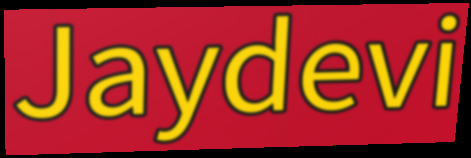
Jaydevi